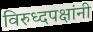
विरुध्दपक्षांनी